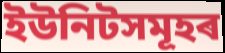
ইউনিটসমূহৰ